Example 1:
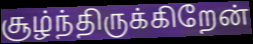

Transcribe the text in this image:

சூழ்ந்திருக்கிறேன்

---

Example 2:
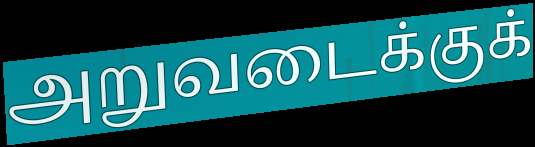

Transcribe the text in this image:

அறுவடைக்குக்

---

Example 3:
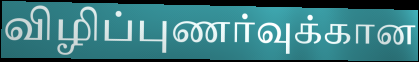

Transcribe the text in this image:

விழிப்புணர்வுக்கான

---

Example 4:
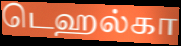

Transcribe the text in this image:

டெஹல்கா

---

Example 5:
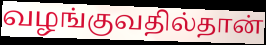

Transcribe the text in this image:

வழங்குவதில்தான்